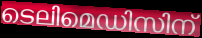
ടെലിമെഡിസിന്